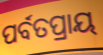
ପର୍ବତପ୍ରାୟ